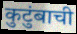
कुटुंबाची